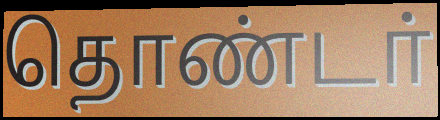
தொண்டர்